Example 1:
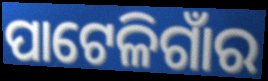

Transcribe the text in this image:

ପାଟେଳିଗାଁର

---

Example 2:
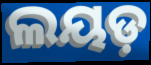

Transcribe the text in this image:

ଲୟଡ଼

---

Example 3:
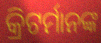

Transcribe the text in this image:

କ୍ରିଟର୍ମାନଙ୍କ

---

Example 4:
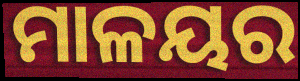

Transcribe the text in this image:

ମାଳୟର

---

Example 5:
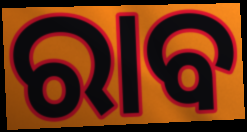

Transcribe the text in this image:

ରାବ